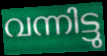
വന്നിട്ടു